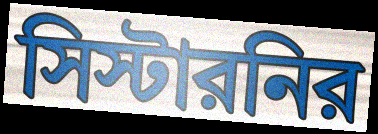
সিস্টারনির